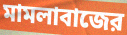
মামলাবাজের